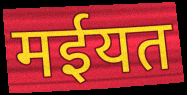
मईयत